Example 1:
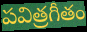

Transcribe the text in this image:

పవిత్రగీతం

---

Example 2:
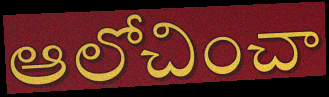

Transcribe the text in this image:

ఆలోచించా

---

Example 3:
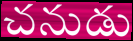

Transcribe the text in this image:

చనుడు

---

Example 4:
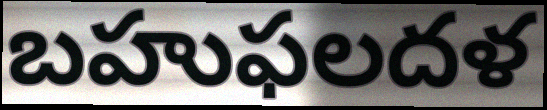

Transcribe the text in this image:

బహుఫలదళ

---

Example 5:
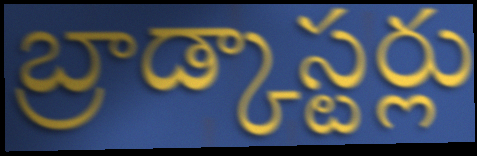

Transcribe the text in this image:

బ్రాడ్కాస్టర్లు